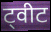
ट्‍वीट